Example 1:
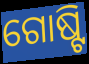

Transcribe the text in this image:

ଗୋଷ୍ଟି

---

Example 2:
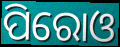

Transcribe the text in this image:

ପିରୋଓ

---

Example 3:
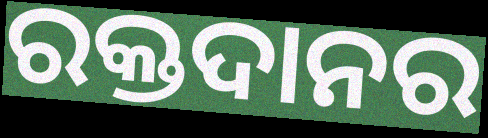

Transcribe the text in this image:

ରକ୍ତଦାନର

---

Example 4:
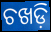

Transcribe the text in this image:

ଚଖଡ଼ି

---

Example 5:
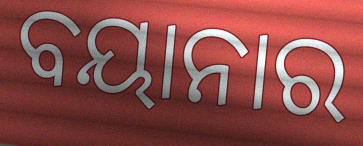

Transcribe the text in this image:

ବୟାନାର